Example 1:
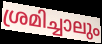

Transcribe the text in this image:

ശ്രമിച്ചാലും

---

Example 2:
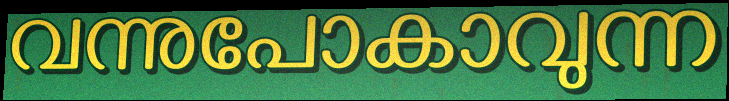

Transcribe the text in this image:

വന്നുപോകാവുന്ന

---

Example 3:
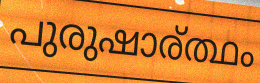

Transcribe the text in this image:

പുരുഷാര്ത്ഥം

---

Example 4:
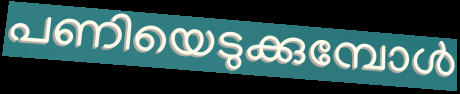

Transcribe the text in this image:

പണിയെടുക്കുമ്പോൾ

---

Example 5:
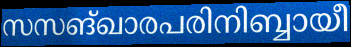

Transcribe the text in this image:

സസങ്ഖാരപരിനിബ്ബായീ